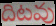
దిటవు